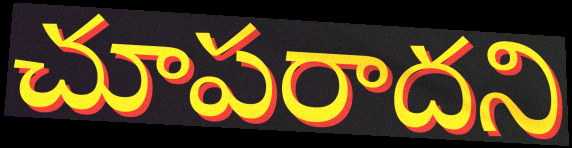
చూపరాదని